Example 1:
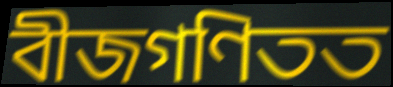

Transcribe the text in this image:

বীজগণিতত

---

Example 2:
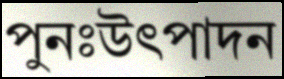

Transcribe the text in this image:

পুনঃউৎপাদন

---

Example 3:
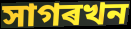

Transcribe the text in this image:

সাগৰখন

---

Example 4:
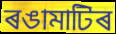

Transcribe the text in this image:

ৰঙামাটিৰ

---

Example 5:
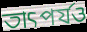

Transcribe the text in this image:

তাৎপৰ্যও